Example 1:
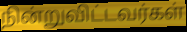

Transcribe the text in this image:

நின்றுவிட்டவர்கள்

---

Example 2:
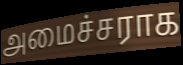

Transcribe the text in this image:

அமைச்சராக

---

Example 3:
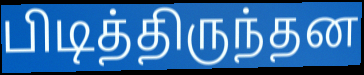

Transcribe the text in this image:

பிடித்திருந்தன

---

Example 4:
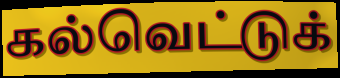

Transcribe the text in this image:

கல்வெட்டுக்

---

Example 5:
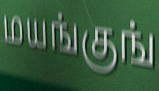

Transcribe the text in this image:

மயங்குங்